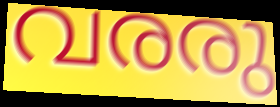
വരരു